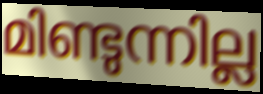
മിണ്ടുന്നില്ല